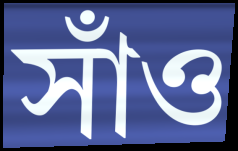
সাঁও